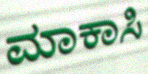
ಮಾಕಾಸಿ